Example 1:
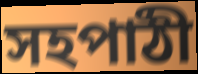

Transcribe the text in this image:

সহপাঠী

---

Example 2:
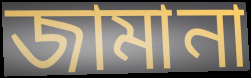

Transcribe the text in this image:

জামানা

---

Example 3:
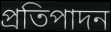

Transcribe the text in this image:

প্ৰতিপাদন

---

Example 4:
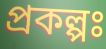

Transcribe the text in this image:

প্ৰকল্পঃ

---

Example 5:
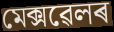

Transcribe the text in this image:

মেক্সৱেলৰ